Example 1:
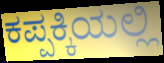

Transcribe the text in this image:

ಕಪ್ಪಕ್ಕಿಯಲ್ಲಿ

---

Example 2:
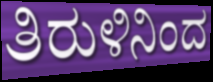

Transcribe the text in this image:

ತಿರುಳಿನಿಂದ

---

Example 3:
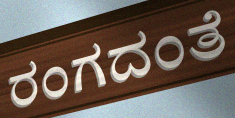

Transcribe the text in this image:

ರಂಗದಂತೆ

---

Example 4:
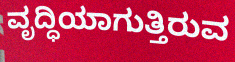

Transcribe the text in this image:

ವೃದ್ಧಿಯಾಗುತ್ತಿರುವ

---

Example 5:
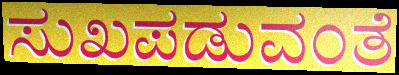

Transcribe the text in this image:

ಸುಖಪಡುವಂತೆ